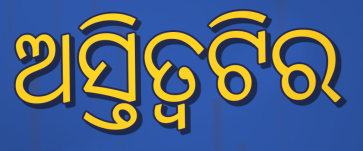
ଅସ୍ତିତ୍ୱଟିର